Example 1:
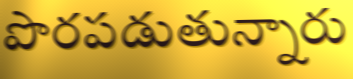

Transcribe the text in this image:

పొరపడుతున్నారు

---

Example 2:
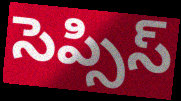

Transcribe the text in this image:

సెప్సిస్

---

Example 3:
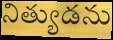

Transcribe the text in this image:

నిత్యుడను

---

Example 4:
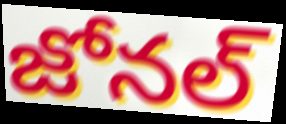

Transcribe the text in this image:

జోనల్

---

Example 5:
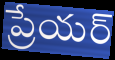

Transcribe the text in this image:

ప్రేయర్